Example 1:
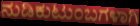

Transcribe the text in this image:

ನುಡಿಕುಟುಂಬಗಳಾಗಿ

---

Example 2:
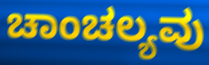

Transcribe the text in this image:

ಚಾಂಚಲ್ಯವು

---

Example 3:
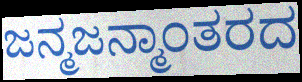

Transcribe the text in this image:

ಜನ್ಮಜನ್ಮಾಂತರದ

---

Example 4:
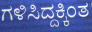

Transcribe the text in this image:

ಗಳಿಸಿದ್ದಕ್ಕಿಂತ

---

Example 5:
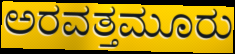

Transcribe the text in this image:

ಅರವತ್ತಮೂರು